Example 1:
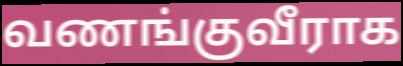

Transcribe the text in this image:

வணங்குவீராக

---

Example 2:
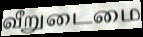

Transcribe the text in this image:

வீறுடைமை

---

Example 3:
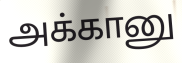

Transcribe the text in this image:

அக்கானு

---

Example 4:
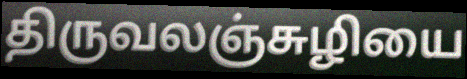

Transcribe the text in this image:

திருவலஞ்சுழியை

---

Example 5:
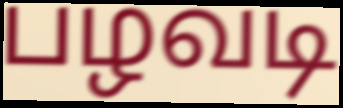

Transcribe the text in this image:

பழவடி